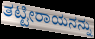
ತಟ್ಟೀರಾಯನನ್ನು